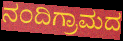
ನಂದಿಗ್ರಾಮದ